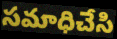
సమాధిచేసి